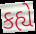
કહ્યે